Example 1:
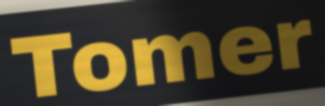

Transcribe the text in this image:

Tomer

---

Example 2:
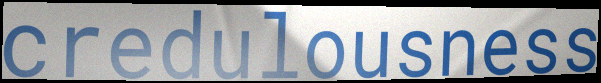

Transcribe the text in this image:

credulousness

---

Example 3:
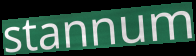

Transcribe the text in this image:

stannum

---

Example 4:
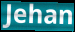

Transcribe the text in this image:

Jehan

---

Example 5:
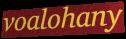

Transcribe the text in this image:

voalohany